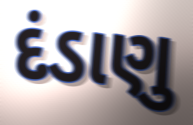
દંડાણુ